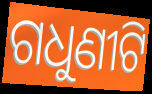
ଗଧୁଣୀଟି